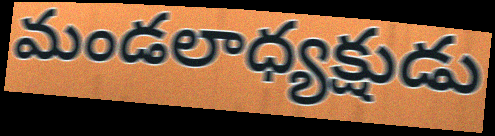
మండలాధ్యక్షుడు